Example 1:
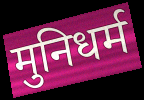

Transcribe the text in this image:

मुनिधर्म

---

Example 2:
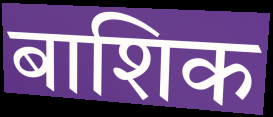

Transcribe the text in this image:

बाशिक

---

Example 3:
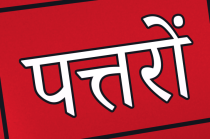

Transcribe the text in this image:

पत्तरों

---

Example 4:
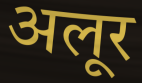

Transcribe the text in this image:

अलूर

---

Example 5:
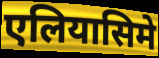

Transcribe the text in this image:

एलियासिमे